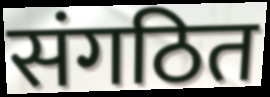
संगठित